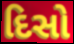
દિસો